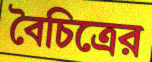
বৈচিত্রের